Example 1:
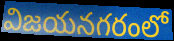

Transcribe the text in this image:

విజయనగరంలో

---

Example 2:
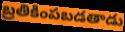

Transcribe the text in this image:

బ్రతికింపబడతాడు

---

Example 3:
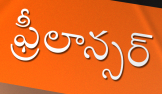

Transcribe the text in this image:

ఫ్రీలాన్సర్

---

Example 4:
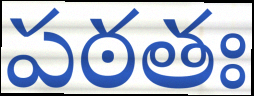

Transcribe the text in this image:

పఠతః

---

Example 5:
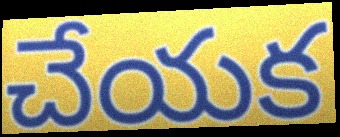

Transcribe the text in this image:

చేయక